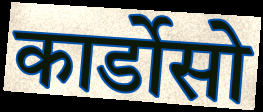
कार्डोसो